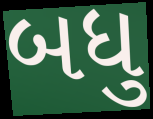
બધુ